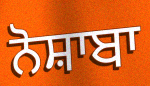
ਨੋਸ਼ਾਬਾ